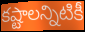
కష్టాలన్నిటికీ